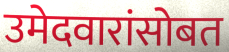
उमेदवारांसोबत